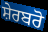
ਸ਼ੇਰਬਰੋ